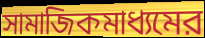
সামাজিকমাধ্যমের